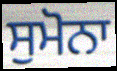
ਸੁਮੋਨਾ